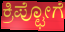
ಕ್ರಿಪ್ಟೋಗೆ